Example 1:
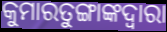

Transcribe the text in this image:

କୁମାରତୁଙ୍ଗାଙ୍କଦ୍ୱାରା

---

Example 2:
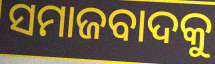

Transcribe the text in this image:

ସମାଜବାଦକୁ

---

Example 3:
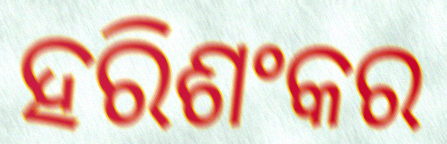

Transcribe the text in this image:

ହରିଶଂକର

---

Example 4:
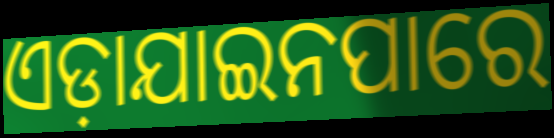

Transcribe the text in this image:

ଏଡ଼ାଯାଇନପାରେ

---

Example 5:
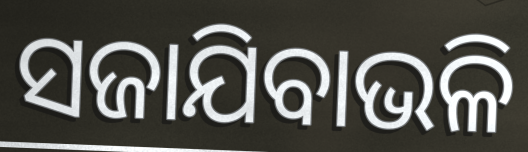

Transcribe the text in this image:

ସଜାଯିବାଭଳି